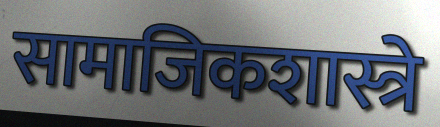
सामाजिकशास्त्रे